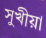
সুখীয়া